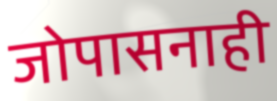
जोपासनाही